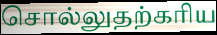
சொல்லுதற்கரிய